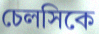
চেলসিকে